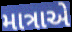
માત્રાએ